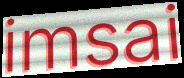
imsai